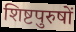
शिष्टपुरुषों